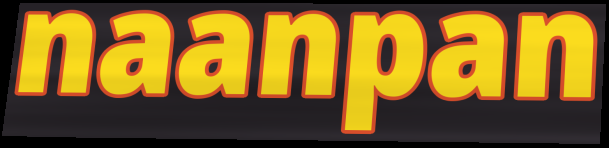
naanpan